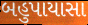
બહુપાયાસા